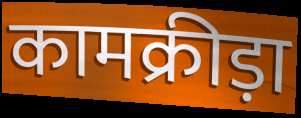
कामक्रीड़ा